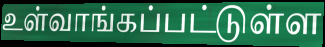
உள்வாங்கப்பட்டுள்ள